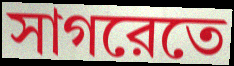
সাগরেতে